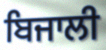
ਬਿਜਾਲੀ